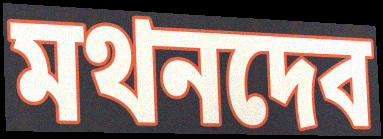
মথনদেব